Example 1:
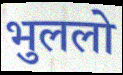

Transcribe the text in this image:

भुललो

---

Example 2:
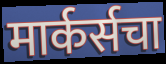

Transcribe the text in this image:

मार्कर्सचा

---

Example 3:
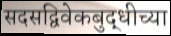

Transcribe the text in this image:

सदसद्विवेकबुद्धीच्या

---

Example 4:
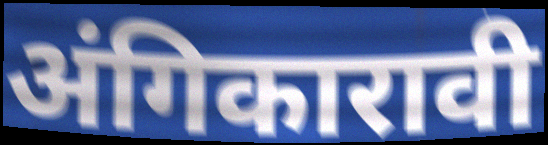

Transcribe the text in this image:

अंगिकारावी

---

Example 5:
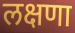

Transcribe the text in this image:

लक्षणा